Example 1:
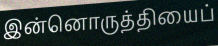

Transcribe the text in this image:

இன்னொருத்தியைப்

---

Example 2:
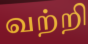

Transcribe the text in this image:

வற்றி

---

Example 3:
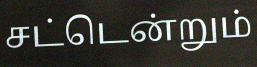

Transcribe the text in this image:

சட்டென்றும்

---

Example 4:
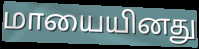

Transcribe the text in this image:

மாயையினது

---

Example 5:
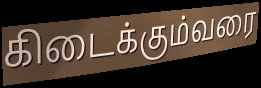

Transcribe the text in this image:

கிடைக்கும்வரை